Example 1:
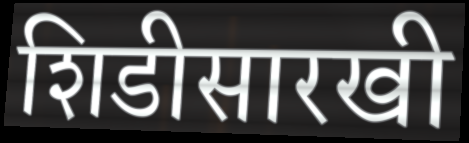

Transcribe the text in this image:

शिडीसारखी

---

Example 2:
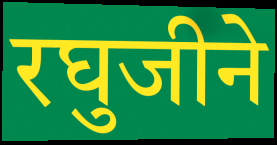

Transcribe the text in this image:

रघुजीने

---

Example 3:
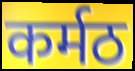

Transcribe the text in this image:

कर्मठ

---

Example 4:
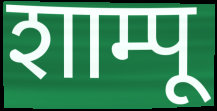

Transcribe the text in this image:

शाम्पू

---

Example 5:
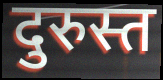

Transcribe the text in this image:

दुरुस्त